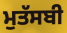
ਮੁਤੱਸਬੀ